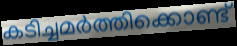
കടിച്ചമർത്തിക്കൊണ്ട്